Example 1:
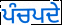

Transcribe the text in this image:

ਪੰਚਪਦੇ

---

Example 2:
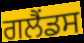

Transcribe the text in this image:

ਗਲੈਂਡਸ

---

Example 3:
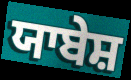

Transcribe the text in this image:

ਯਾਬੇਸ਼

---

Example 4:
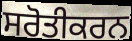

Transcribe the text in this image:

ਸਰੋਤੀਕਰਨ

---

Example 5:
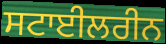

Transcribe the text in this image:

ਸਟਾਈਲਰੀਨ